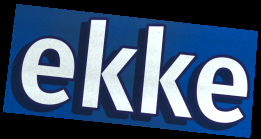
ekke